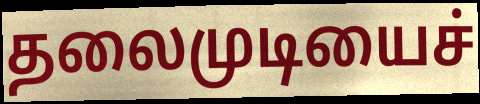
தலைமுடியைச்